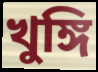
খুঙ্গি